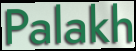
Palakh